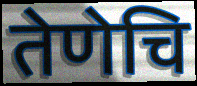
तेणेचि